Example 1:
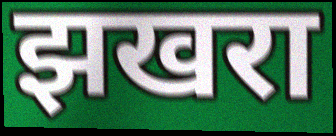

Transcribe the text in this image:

झखरा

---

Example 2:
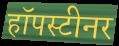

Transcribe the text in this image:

हॉपस्टीनर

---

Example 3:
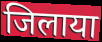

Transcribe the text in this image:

जिलाया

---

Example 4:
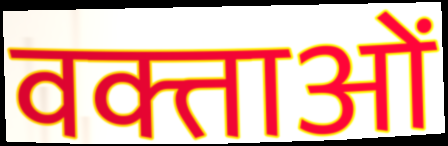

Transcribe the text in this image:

वक्ताओें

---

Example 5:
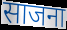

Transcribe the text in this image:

साजना